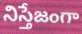
నిస్తేజంగా